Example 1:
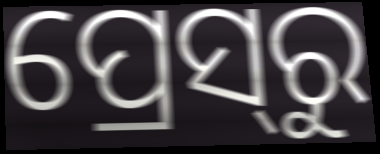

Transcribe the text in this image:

ପ୍ରେସ୍‌ରୁ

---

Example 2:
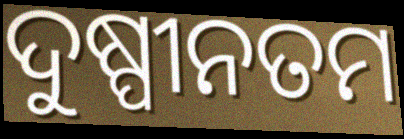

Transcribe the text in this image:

ଦୁଷ୍ପୀନତମ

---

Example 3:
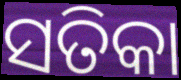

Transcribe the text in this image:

ସତିକା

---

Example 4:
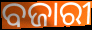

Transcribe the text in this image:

ବଜାରୀ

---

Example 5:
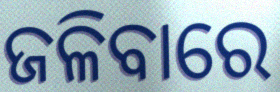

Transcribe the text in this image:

ଜଳିବାରେ